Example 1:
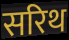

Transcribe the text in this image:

सरिथ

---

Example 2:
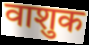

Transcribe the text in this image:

वाशुक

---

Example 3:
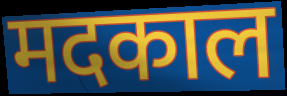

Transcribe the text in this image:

मदकाल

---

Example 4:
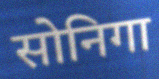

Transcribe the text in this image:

सोनिगा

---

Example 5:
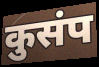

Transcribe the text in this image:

कुसंप